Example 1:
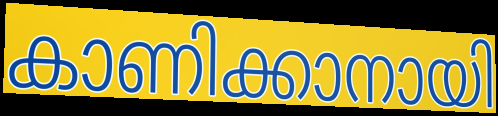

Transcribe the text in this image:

കാണിക്കാനായി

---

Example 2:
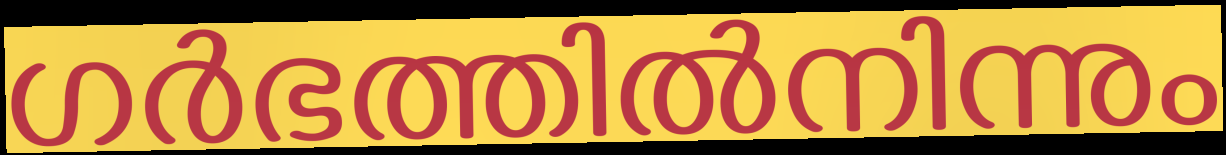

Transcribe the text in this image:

ഗർഭത്തിൽനിന്നും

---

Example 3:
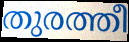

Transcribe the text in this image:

തുരത്തീ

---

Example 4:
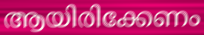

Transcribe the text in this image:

ആയിരിക്കേണം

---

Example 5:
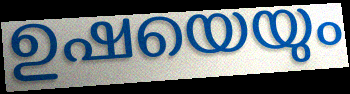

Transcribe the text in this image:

ഉഷയെയും